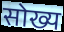
सोख्य